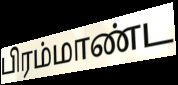
பிரம்மாண்ட